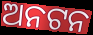
ଅନଟନ